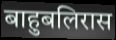
बाहुबलिरास